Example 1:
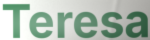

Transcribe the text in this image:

Teresa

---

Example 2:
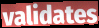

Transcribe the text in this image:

validates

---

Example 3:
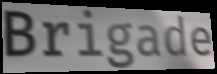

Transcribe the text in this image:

Brigade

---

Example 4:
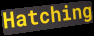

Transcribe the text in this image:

Hatching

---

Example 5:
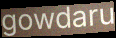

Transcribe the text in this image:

gowdaru